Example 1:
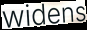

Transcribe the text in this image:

widens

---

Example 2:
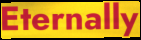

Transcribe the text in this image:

Eternally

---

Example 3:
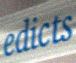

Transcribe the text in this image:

edicts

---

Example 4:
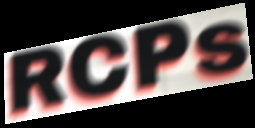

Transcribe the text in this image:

RCPs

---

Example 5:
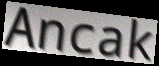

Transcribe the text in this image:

Ancak